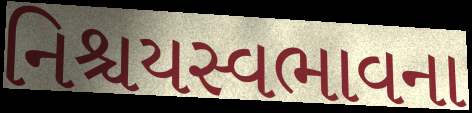
નિશ્ચયસ્વભાવના